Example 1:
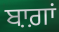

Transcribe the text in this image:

ਬ਼ਾਗ਼ਾਂ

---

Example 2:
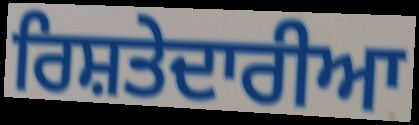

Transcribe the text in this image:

ਰਿਸ਼ਤੇਦਾਰੀਆ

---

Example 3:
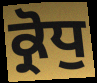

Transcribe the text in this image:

ਕ੍ਰੋਧੁ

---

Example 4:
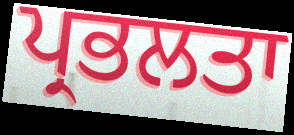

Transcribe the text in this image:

ਪ੍ਰਭਲਤਾ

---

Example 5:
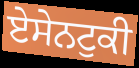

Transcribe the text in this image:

ਏਸੇਨਟੁਕੀ